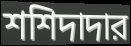
শশিদাদার